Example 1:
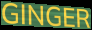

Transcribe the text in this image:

GINGER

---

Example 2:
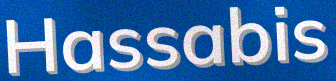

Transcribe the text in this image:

Hassabis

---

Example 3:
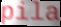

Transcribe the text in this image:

pila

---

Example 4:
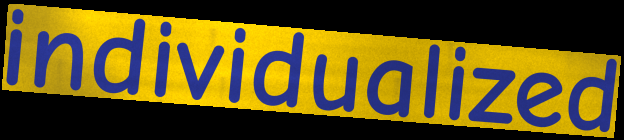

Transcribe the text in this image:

individualized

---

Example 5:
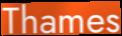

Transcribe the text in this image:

Thames